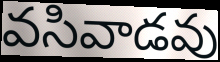
వసివాడవు